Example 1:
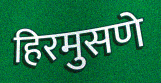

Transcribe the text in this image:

हिरमुसणे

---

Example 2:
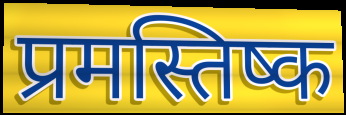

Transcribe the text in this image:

प्रमस्तिष्क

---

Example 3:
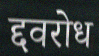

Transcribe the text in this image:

द्दवरोध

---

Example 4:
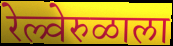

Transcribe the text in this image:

रेल्वेरुळाला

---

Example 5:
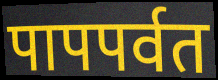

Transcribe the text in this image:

पापपर्वत